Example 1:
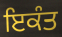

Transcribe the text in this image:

ਇਕੰਤ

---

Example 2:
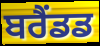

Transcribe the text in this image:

ਬਰੈਂਡਡ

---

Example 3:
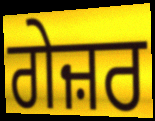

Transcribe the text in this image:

ਗੇਜ਼ਰ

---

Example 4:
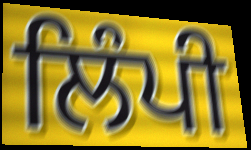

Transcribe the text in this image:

ਲਿੰਪੀ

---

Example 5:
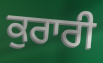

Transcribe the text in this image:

ਕੁਰਾਰੀ